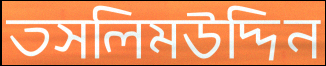
তসলিমউদ্দিন